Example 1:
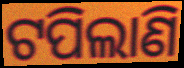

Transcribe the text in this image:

ଟପିଲାଣି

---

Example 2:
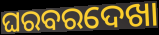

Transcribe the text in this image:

ଘରବରଦେଖା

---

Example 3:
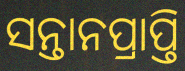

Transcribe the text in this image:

ସନ୍ତାନପ୍ରାପ୍ତି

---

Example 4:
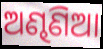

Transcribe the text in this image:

ଅଣ୍ଢଣିଆ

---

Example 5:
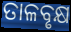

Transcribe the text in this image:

ତାଳବୃକ୍ଷ